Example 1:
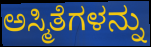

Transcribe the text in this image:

ಅಸ್ಮಿತೆಗಳನ್ನು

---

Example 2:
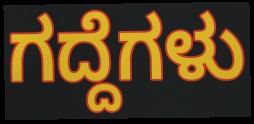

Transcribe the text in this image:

ಗದ್ದೆಗಳು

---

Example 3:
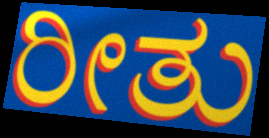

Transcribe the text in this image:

ರೀತು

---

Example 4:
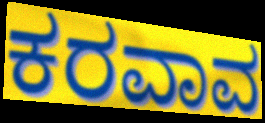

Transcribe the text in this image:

ಕರವಾವ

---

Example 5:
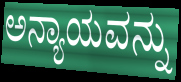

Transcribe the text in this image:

ಅನ್ಯಾಯವನ್ನು